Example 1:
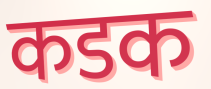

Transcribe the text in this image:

कडक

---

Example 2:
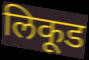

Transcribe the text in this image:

लिकूड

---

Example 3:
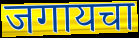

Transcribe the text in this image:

जगायचा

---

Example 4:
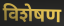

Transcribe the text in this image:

विशेषण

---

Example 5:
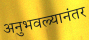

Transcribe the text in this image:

अनुभवल्यानंतर